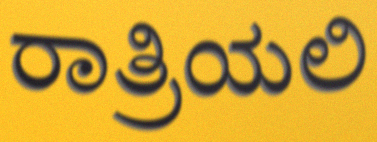
ರಾತ್ರಿಯಲಿ